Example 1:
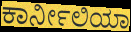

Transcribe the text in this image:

ಕಾರ್ನೀಲಿಯಾ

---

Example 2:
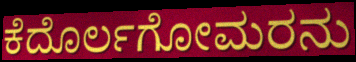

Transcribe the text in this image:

ಕೆದೊರ್ಲಗೋಮರನು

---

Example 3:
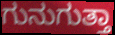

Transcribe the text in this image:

ಗುನುಗುತ್ತಾ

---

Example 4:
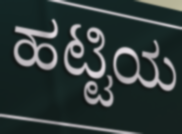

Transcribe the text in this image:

ಹಟ್ಟಿಯ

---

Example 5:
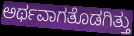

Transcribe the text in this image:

ಅರ್ಥವಾಗತೊಡಗಿತ್ತು